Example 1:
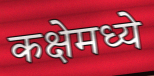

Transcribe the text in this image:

कक्षेमध्ये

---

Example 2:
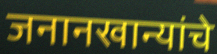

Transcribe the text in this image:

जनानखान्यांचे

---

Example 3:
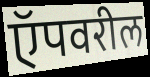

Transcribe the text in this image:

ऍपवरील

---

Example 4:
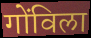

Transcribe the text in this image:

गोंविला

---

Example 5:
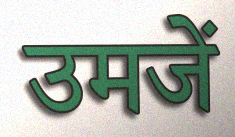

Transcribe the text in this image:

उमजें